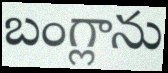
బంగ్లాను